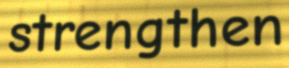
strengthen